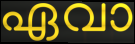
ഏവാ